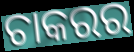
ଚାକରର